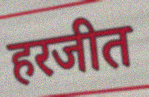
हरजीत